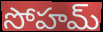
సోహమ్